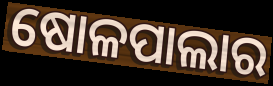
ଷୋଳପାଲାର